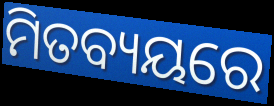
ମିତବ୍ୟୟରେ